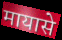
मायासे